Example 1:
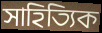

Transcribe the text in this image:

সাহিত্যিক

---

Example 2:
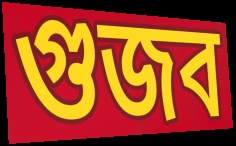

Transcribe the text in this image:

গুজব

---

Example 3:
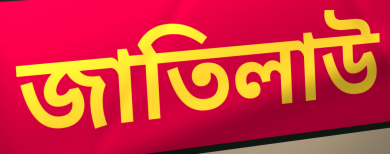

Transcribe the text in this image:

জাতিলাউ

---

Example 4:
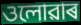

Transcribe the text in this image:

ওলোৱাৰ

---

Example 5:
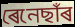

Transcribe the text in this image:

ৰেনেছাঁৰ